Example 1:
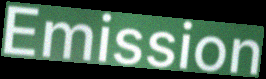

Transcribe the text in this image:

Emission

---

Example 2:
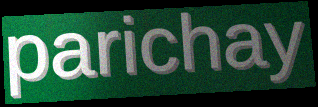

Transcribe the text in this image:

parichay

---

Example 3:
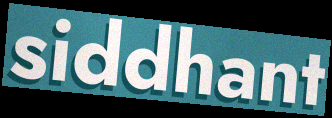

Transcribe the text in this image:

siddhant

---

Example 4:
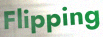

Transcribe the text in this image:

Flipping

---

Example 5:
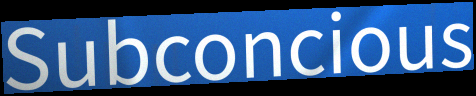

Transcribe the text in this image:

Subconcious